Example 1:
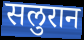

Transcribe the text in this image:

सलुरान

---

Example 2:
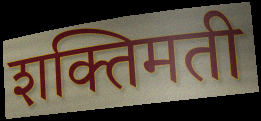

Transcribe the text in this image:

शक्तिमती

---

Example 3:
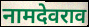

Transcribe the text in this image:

नामदेवराव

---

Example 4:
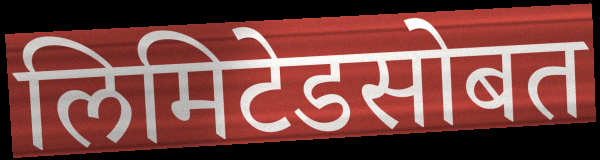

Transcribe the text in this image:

लिमिटेडसोबत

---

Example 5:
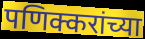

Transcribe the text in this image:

पणिक्करांच्या